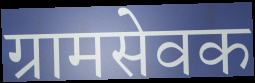
ग्रामसेवक